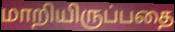
மாறியிருப்பதை